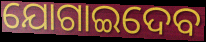
ଯୋଗାଇଦେବ